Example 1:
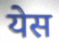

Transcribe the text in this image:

येस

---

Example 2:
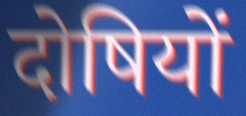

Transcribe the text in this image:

दोषियों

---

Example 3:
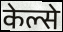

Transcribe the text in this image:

केल्से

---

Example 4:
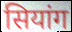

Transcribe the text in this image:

सियांग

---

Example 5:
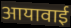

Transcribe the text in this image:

आयावाई